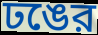
ঢঙের